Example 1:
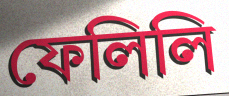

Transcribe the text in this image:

ফেলিলি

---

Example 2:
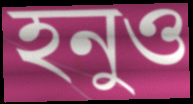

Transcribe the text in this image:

হনুও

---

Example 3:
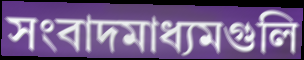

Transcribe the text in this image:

সংবাদমাধ্যমগুলি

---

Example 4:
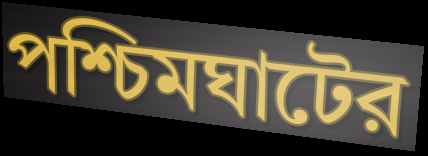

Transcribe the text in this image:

পশ্চিমঘাটের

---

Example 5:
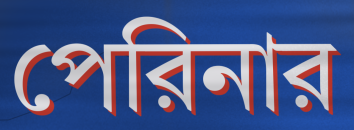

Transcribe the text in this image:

পেরিনার